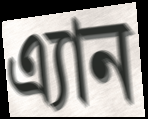
এ্যান